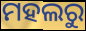
ମହଲରୁ